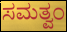
ಸಮತ್ವಂ